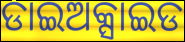
ଡାଇଅକ୍ସାଇଡ